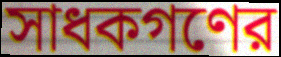
সাধকগণের